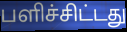
பளிச்சிட்டது